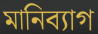
মানিব্যাগ